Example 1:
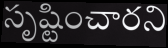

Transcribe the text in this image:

సృష్టించారని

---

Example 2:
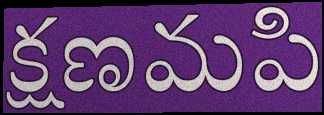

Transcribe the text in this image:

క్షణమపి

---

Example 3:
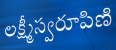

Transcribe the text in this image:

లక్ష్మీస్వరూపిణి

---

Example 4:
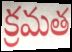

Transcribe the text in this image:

క్రమత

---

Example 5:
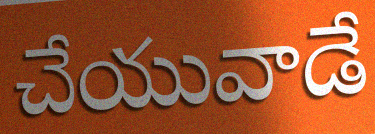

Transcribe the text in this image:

చేయువాడే